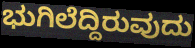
ಭುಗಿಲೆದ್ದಿರುವುದು